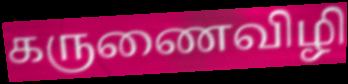
கருணைவிழி